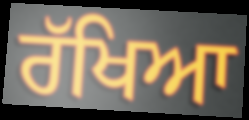
ਰੱਖਿਆ